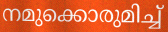
നമുക്കൊരുമിച്ച്